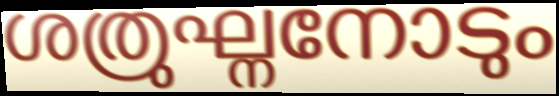
ശത്രുഘ്നനോടും